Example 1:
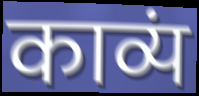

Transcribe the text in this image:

काव्यं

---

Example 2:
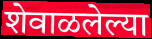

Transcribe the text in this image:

शेवाळलेल्या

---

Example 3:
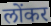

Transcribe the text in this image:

लोंकर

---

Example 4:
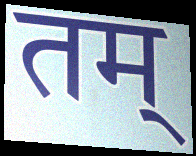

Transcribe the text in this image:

तम्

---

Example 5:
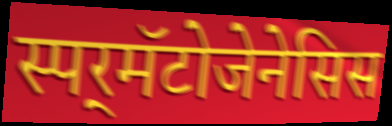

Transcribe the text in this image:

स्पर्मॅटोजेनेसिस